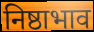
निष्ठाभाव